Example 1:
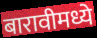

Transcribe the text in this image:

बारावीमध्ये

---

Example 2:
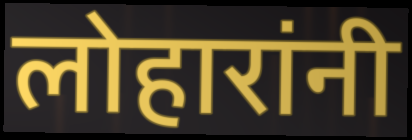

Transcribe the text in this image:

लोहारांनी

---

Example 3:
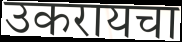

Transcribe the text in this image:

उकरायचा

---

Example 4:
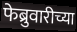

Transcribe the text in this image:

फेब्रुवारीच्या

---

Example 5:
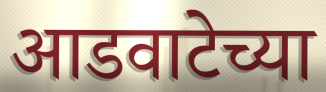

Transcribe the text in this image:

आडवाटेच्या